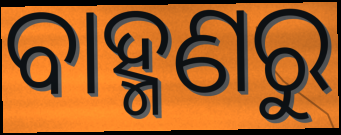
ବାହ୍ମଣରୁ